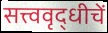
सत्त्ववृद्धीचें